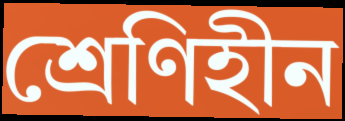
শ্রেণিহীন